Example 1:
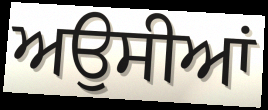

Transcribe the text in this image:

ਅਉਸੀਆਂ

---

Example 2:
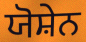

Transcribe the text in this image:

ਯੋਸ਼ੇਨ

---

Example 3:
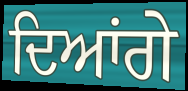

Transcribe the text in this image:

ਦਿਆਂਗੇ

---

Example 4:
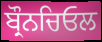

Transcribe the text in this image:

ਬ੍ਰੌਨਚਿਓਲ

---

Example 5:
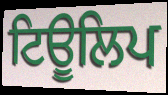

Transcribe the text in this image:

ਟਿਊਲਿਪ